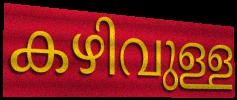
കഴിവുള്ള